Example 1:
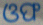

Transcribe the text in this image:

ଓଫ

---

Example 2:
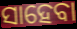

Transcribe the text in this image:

ସାହେବା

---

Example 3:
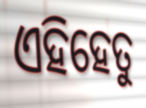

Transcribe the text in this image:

ଏହିହେତୁ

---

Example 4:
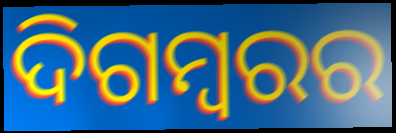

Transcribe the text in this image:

ଦିଗମ୍ୱରର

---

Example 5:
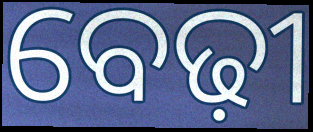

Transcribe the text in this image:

ବେଢ଼ୀ